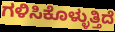
ಗಳಿಸಿಕೊಳ್ಳುತ್ತಿದೆ